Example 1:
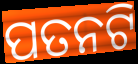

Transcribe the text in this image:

ପତନଟି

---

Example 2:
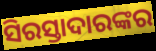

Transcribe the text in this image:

ସିରସ୍ତାଦାରଙ୍କର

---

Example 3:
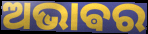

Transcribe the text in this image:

ଅଭାଵର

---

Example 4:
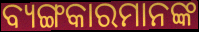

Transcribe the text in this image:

ବ୍ୟଙ୍ଗକାରମାନଙ୍କ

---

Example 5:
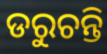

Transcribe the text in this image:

ଡରୁଚନ୍ତି